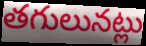
తగులునట్లు